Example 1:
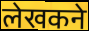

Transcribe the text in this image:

लेखकने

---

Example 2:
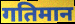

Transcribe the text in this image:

गतिमान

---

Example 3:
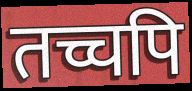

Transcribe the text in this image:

तच्चपि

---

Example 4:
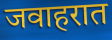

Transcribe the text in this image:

जवाहरात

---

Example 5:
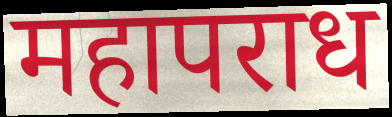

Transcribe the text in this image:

महापराध